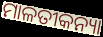
ମାଳତୀକନ୍ୟା